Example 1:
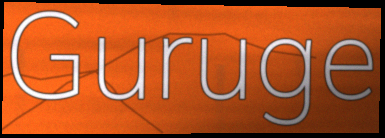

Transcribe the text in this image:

Guruge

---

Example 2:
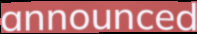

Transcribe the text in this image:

announced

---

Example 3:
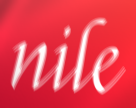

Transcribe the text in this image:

nile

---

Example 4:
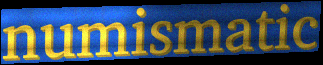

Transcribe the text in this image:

numismatic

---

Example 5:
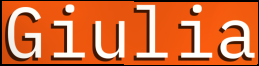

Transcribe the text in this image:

Giulia